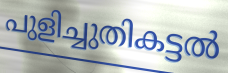
പുളിച്ചുതികട്ടൽ